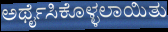
ಅರ್ಥೈಸಿಕೊಳ್ಳಲಾಯಿತು